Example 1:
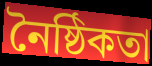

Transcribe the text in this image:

নৈষ্ঠিকতা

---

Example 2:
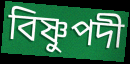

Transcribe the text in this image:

বিষ্ণুপদী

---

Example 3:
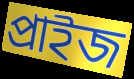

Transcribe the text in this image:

প্ৰাইজ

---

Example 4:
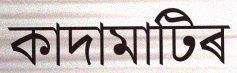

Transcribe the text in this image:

কাদামাটিৰ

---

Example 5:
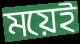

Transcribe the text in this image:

ময়েই